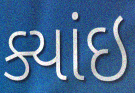
ક્યાંઇ